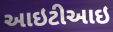
આઇટીઆઇ